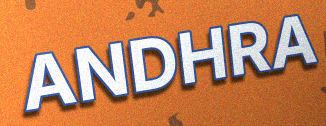
ANDHRA